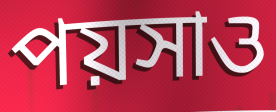
পয়সাও